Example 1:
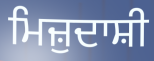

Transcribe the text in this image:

ਮਿਜ਼ੁਦਾਸ਼ੀ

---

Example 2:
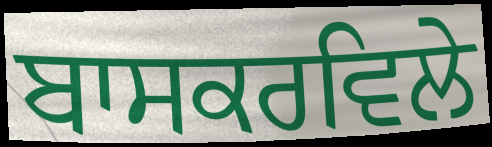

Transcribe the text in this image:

ਬਾਸਕਰਵਿਲੇ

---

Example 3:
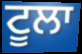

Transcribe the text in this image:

ਟੂਲਾ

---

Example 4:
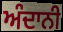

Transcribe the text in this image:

ਅੰਦਾਨੀ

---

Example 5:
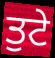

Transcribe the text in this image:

ਤੁਟੇ